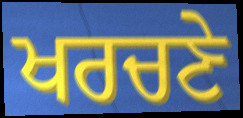
ਖਰਚਣੇ